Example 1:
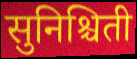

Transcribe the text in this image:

सुनिश्चिती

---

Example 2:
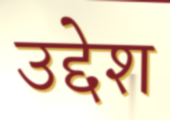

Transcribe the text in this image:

उद्देश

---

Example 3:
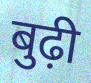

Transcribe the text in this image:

बुढ़ी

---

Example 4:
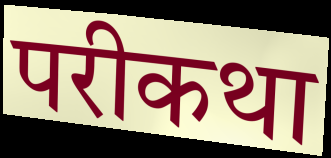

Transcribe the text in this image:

परीकथा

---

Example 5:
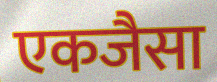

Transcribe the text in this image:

एकजैसा